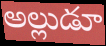
అల్లుడూ